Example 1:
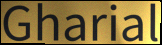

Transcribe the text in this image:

Gharial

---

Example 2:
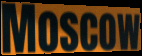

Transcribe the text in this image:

Moscow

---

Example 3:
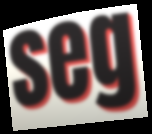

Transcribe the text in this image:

seg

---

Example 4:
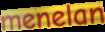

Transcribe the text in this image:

menelan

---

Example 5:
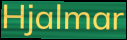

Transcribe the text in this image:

Hjalmar